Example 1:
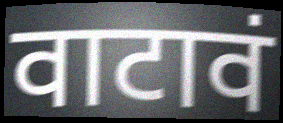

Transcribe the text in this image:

वाटावं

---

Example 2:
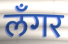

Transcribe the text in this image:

लँगर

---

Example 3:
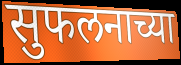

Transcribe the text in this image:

सुफलनाच्या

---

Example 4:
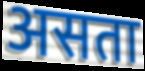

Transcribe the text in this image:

असता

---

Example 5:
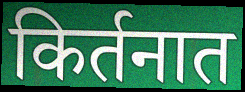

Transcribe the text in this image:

किर्तनात